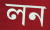
লন